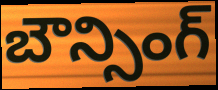
బౌన్సింగ్